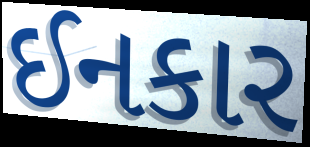
ઈનકાર